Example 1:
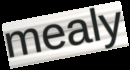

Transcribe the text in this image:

mealy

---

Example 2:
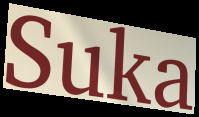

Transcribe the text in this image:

Suka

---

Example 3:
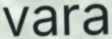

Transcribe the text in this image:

vara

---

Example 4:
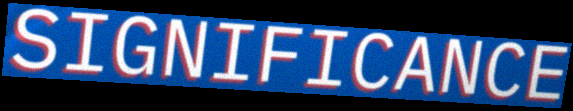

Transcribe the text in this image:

SIGNIFICANCE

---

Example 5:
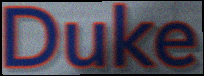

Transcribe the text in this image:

Duke